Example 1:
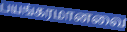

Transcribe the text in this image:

பயங்கரமானவை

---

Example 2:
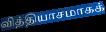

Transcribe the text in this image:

வித்தியாசமாகக்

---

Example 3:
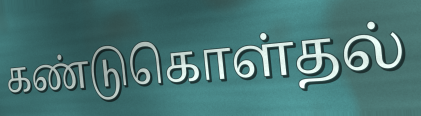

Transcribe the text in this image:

கண்டுகொள்தல்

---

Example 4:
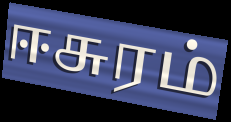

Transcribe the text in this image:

ஈசுரம்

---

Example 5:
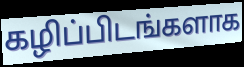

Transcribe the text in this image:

கழிப்பிடங்களாக